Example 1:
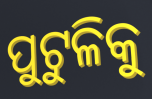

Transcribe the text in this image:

ପୁଟୁଳିକୁ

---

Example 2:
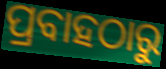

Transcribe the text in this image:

ପ୍ରବାହଠାରୁ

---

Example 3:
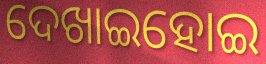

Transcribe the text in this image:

ଦେଖାଇହୋଇ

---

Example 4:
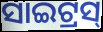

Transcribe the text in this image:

ସାଇଟ୍ରସ୍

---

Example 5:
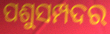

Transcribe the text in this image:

ପଶୁସମ୍ପଦର